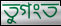
তুগংত